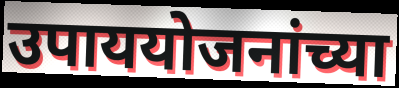
उपाययोजनांच्या